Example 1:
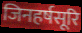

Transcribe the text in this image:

जिनहर्षसूरि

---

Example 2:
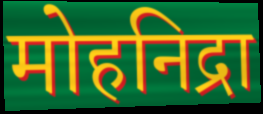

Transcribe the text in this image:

मोहनिद्रा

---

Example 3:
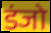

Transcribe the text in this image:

डंजो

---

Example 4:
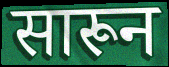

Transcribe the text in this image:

सारून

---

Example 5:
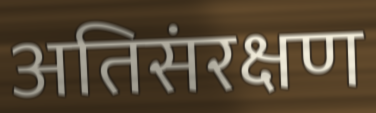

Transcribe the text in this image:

अतिसंरक्षण